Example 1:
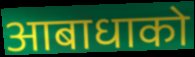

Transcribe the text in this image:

आबाधाको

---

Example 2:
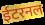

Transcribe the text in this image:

ईटरनल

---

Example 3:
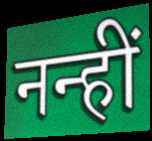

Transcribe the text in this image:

नन्हीं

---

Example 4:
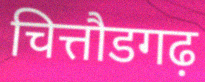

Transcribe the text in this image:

चित्तौडगढ़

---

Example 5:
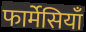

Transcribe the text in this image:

फार्मेसियाँ